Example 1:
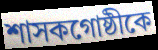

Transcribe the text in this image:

শাসকগোষ্ঠীকে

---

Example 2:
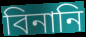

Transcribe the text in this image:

বিনানি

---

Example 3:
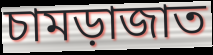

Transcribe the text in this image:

চামড়াজাত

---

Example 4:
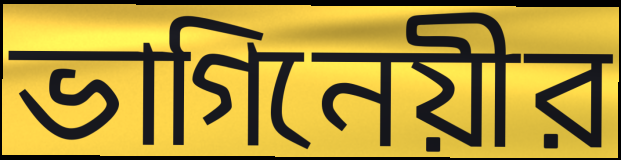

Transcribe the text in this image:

ভাগিনেয়ীর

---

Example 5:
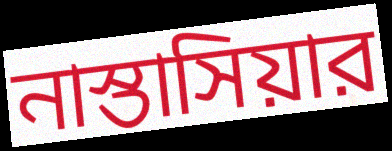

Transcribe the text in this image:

নাস্তাসিয়ার